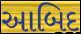
આબિદ